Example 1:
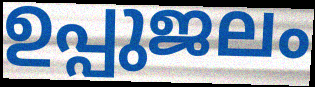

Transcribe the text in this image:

ഉപ്പുജലം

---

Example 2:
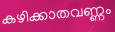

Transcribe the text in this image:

കഴിക്കാതവണ്ണം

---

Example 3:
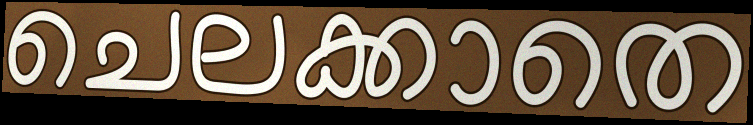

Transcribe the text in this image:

ചെലക്കാതെ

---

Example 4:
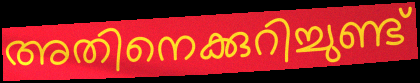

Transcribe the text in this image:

അതിനെക്കുറിച്ചുണ്ട്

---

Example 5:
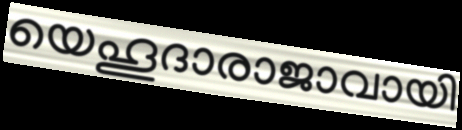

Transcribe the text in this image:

യെഹൂദാരാജാവായി